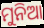
ମୁନିଆ